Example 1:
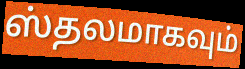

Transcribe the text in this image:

ஸ்தலமாகவும்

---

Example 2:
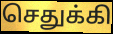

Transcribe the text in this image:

செதுக்கி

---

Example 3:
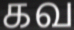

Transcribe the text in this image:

கவ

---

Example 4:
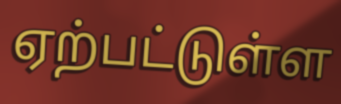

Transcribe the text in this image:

ஏற்பட்டுள்ள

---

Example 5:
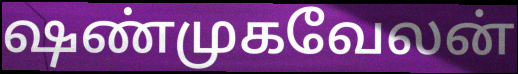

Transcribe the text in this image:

ஷண்முகவேலன்